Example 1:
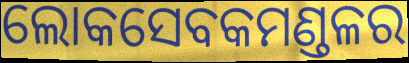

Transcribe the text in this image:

ଲୋକସେବକମଣ୍ଡଳର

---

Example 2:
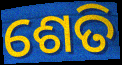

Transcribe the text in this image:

ଶେତି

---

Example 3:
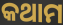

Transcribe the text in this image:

କଥାମ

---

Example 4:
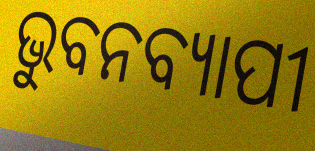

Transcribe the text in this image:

ଭୁବନବ୍ୟାପୀ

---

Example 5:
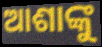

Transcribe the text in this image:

ଆଶାଙ୍କୁ